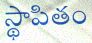
స్థాపితం